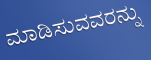
ಮಾಡಿಸುವವರನ್ನು